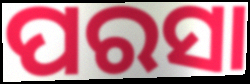
ପରସା